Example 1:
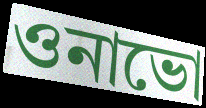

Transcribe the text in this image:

ওনাভো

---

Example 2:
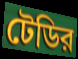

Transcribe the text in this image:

টেডির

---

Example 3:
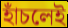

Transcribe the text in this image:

হাঁচলেই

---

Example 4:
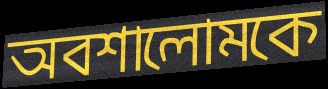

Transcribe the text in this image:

অবশালোমকে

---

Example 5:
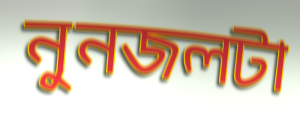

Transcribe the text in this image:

নুনজলটা